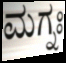
ಮಗ್ನಃ